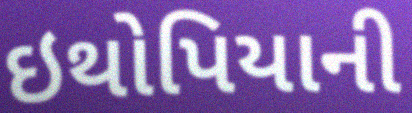
ઇથોપિયાની